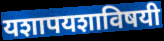
यशापयशाविषयी